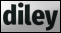
diley